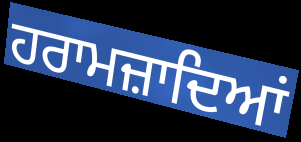
ਹਰਾਮਜ਼ਾਦਿਆਂ